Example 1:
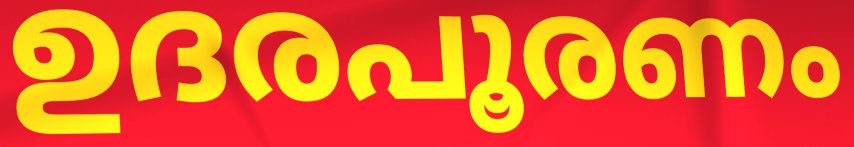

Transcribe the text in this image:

ഉദരപൂരണം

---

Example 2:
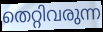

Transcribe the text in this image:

തെറ്റിവരുന്ന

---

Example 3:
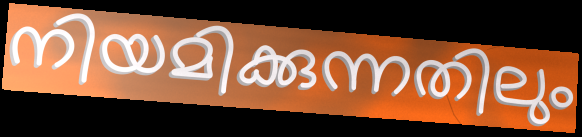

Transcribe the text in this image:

നിയമിക്കുന്നതിലും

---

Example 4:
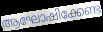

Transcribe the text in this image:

ആഘോഷിക്കേണ്ട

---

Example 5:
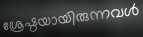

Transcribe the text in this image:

ശ്രേഷ്ഠയായിരുന്നവൾ